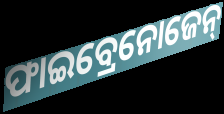
ଫାଇବ୍ରେନୋଜେନ୍